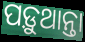
ପଡ଼ୁଥାନ୍ତା